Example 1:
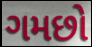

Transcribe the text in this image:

ગમછો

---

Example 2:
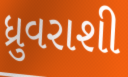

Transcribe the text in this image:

ધ્રુવરાશી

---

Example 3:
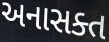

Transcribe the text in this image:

અનાસક્ત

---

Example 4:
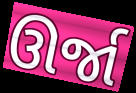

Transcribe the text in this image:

ઊર્જા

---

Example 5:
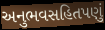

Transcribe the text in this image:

અનુભવસહિતપણું